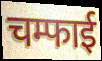
चम्फाई